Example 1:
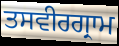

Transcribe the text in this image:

ਤਸਵੀਰਗ੍ਰਾਮ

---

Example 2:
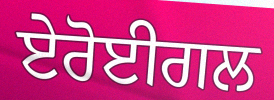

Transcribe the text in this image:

ਏਰੋਈਗਲ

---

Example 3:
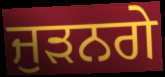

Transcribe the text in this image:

ਜੁਡ਼ਨਗੇ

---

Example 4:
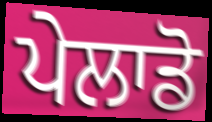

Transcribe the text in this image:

ਪੇਲਾਡੋ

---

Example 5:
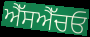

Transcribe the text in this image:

ਐੱਸਐੱਚਓ